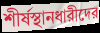
শীর্ষস্থানধারীদের